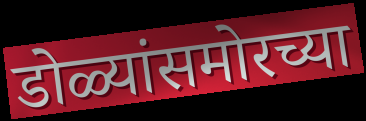
डोळ्यांसमोरच्या